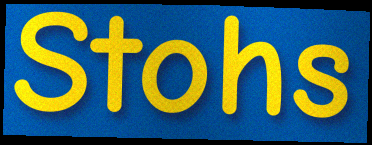
Stohs